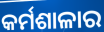
କର୍ମଶାଳାର